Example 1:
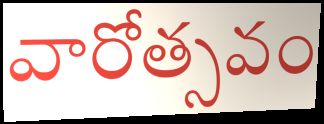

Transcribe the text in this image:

వారోత్సవం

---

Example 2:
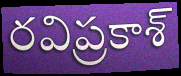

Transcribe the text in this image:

రవిప్రకాశ్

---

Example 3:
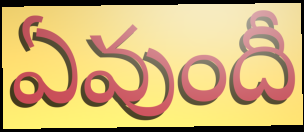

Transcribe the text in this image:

ఏవుందీ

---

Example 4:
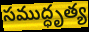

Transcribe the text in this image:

సముద్ధృత్య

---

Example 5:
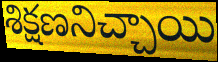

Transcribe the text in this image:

శిక్షణనిచ్చాయి